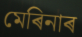
মেৰিনাৰ